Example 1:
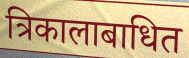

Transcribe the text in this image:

त्रिकालाबाधित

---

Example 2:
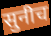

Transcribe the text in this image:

सुनीच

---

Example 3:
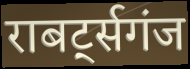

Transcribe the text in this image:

राबर्ट्सगंज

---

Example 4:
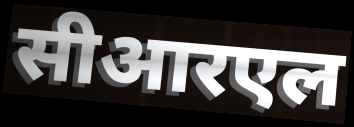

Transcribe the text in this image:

सीआरएल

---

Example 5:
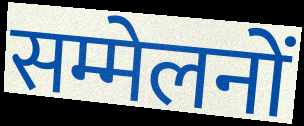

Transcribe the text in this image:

सम्‍मेलनों